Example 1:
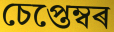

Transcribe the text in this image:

চেপ্তেম্বৰ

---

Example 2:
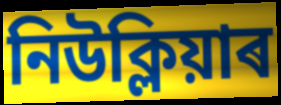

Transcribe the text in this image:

নিউক্লিয়াৰ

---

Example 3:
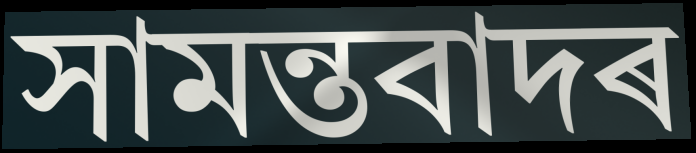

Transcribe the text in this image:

সামন্তবাদৰ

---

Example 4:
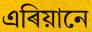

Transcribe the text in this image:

এৰিয়ানে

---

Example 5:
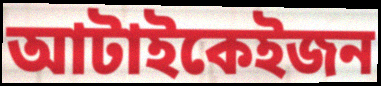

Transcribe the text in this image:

আটাইকেইজন